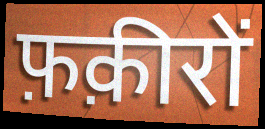
फ़क़ीरों